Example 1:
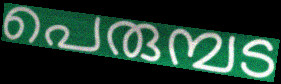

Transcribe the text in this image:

പെരുമ്പട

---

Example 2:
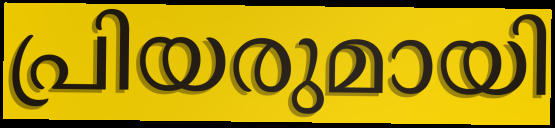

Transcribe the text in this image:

പ്രിയരുമായി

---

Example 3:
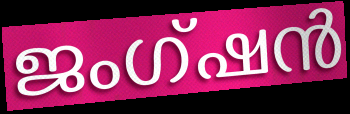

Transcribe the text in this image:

ജംഗ്ഷൻ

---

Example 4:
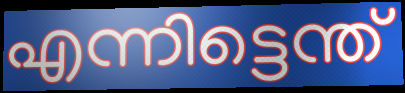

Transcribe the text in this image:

എന്നിട്ടെന്ത്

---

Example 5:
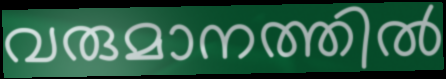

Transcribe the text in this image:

വരുമാനത്തിൽ